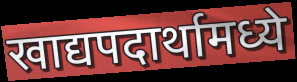
खाद्यपदार्थामध्ये